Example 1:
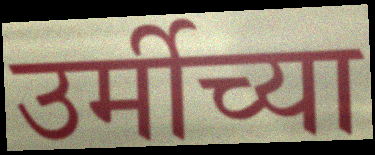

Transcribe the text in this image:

उर्मीच्या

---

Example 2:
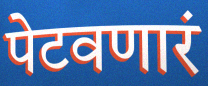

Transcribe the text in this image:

पेटवणारं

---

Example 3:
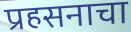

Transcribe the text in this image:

प्रहसनाचा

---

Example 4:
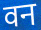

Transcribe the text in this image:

वन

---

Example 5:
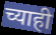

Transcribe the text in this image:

च्याही